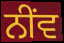
ਨੀਂਵ